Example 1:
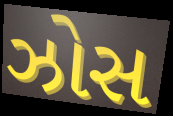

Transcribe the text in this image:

ઝોસ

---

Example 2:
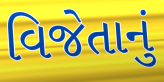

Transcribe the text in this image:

વિજેતાનું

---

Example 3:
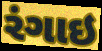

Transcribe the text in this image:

રંગાઇ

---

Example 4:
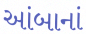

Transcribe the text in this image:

આંબાનાં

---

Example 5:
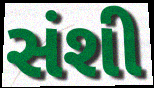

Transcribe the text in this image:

સંશી